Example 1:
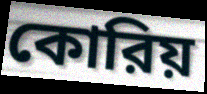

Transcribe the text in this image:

কোরিয়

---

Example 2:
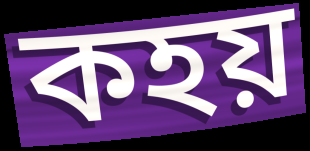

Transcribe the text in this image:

কহয়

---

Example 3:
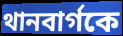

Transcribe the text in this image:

থানবার্গকে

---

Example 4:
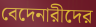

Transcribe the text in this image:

বেদেনারীদের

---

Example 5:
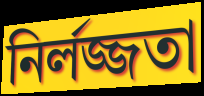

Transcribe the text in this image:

নির্লজ্জতা